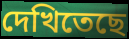
দেখিতেছে